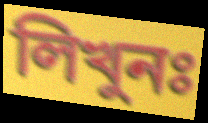
লিখুনঃ